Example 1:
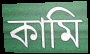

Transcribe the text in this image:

কামি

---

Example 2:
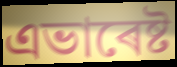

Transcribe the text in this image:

এভাৰেষ্ট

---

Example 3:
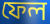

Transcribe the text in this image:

ফেল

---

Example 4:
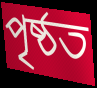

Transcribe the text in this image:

পৃষ্ঠত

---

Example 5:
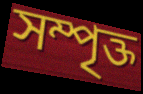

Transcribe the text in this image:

সম্পৃক্ত